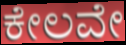
ಕೇಲವೇ